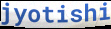
jyotishi